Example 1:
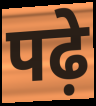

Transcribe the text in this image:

पढ़े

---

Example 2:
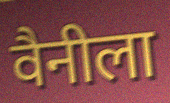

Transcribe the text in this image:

वैनीला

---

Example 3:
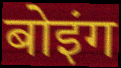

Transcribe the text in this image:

बोइंग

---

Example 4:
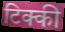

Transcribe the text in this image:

टिक्की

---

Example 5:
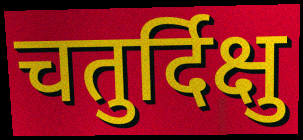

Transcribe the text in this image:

चतुर्दिक्षु